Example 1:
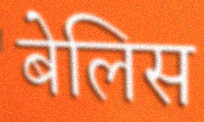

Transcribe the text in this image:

बेलिस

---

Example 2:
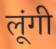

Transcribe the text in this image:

लूंगी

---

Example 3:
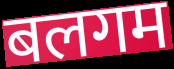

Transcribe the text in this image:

बलगम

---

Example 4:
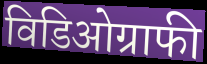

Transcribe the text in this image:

विडिओग्राफी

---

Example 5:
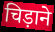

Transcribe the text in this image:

चिड़ाने